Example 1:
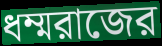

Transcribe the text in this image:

ধম্মরাজের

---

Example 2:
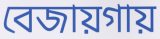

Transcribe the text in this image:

বেজায়গায়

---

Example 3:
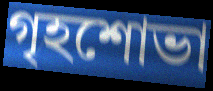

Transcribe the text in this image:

গৃহশোভা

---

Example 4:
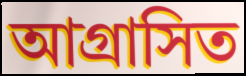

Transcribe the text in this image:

আগ্রাসিত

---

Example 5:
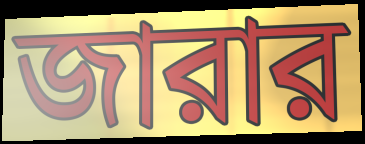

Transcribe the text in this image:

জারার